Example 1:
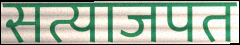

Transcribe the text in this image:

सत्याजपत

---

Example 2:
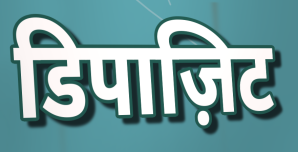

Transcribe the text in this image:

डिपाज़िट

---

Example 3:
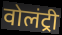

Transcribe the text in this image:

वोलंट्री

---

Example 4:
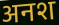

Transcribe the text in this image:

अनश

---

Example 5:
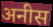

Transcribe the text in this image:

अनीस